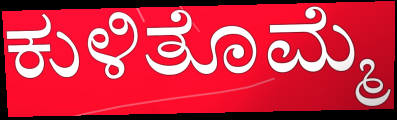
ಕುಳಿತೊಮ್ಮೆ